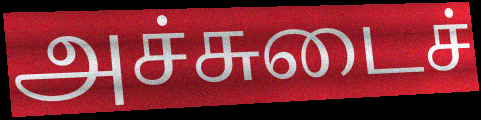
அச்சுடைச்